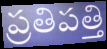
ప్రతిపత్తి